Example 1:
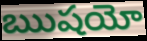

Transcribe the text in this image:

ఋషయో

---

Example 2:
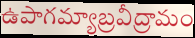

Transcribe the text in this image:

ఉపాగమ్యాబ్రవీద్రామం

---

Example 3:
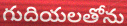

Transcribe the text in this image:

గుదియలతోను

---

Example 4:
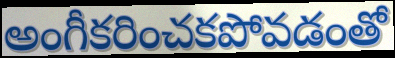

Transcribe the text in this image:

అంగీకరించకపోవడంతో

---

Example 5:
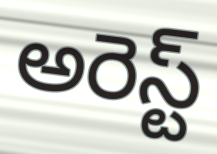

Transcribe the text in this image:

అరెస్ట్